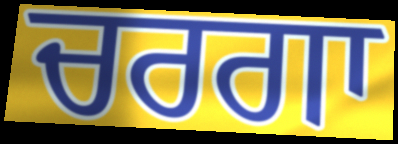
ਚਰਗਾ